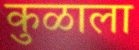
कुळाला